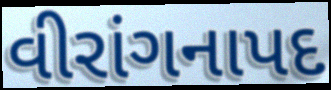
વીરાંગનાપદ